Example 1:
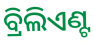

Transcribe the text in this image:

ବ୍ରିଲିଏଣ୍ଟ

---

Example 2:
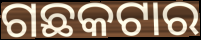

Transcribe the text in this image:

ଗଛକଟାର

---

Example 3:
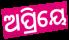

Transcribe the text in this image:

ଅପ୍ରିୟେ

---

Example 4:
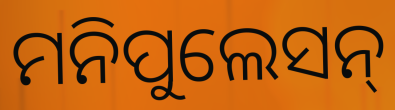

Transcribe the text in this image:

ମନିପୁଲେସନ୍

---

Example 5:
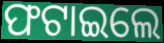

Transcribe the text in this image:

ଫଟାଇଲେ